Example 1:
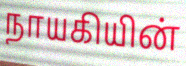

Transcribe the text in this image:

நாயகியின்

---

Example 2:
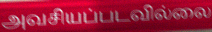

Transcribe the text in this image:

அவசியப்படவில்லை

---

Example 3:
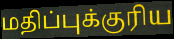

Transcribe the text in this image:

மதிப்புக்குரிய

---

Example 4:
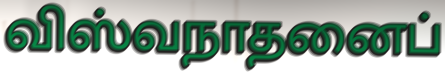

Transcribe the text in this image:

விஸ்வநாதனைப்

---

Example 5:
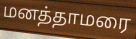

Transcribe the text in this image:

மனத்தாமரை